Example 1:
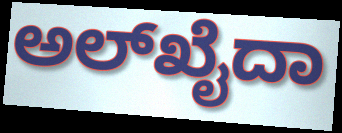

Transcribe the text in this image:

ಅಲ್‌ಖೈದಾ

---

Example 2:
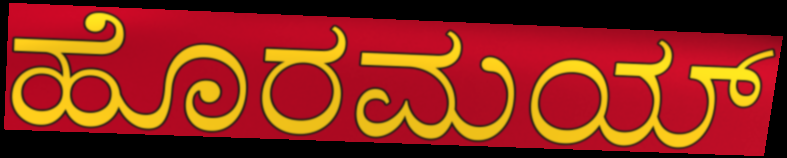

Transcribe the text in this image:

ಹೊರಮಯ್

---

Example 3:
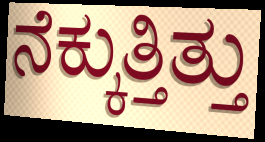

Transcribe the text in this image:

ನೆಕ್ಕುತ್ತಿತ್ತು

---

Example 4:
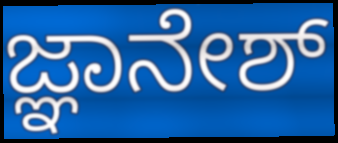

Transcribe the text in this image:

ಜ್ಞಾನೇಶ್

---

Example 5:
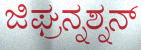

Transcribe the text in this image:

ಜಿಘ್ರನ್ನಶ್ನನ್